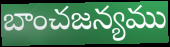
బాంచజన్యము